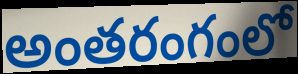
అంతరంగంలో